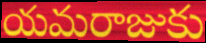
యమరాజుకు